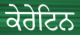
ਕੇਰੇਟਿਨ